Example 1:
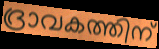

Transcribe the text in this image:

ദ്രാവകത്തിന്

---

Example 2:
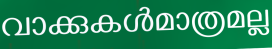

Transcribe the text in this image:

വാക്കുകൾമാത്രമല്ല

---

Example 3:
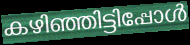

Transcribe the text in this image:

കഴിഞ്ഞിട്ടിപ്പോൾ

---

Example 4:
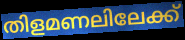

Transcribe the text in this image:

തിളമണലിലേക്ക്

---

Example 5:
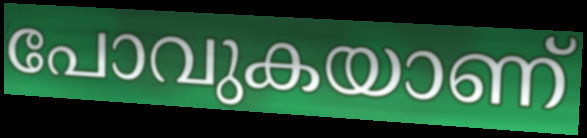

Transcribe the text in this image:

പോവുകയാണ്